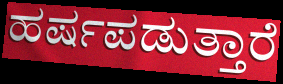
ಹರ್ಷಪಡುತ್ತಾರೆ